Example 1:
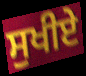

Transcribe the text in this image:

ਸੁਖੀਏ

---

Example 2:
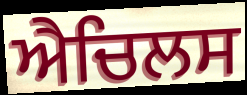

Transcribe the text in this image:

ਐਚਿਲਸ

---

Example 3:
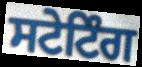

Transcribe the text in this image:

ਸਟੇਟਿੰਗ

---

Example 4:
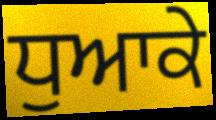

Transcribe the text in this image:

ਧੁਆਕੇ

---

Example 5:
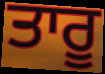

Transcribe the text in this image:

ਤਾਰੂ